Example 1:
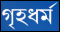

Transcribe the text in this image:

গৃহধর্ম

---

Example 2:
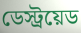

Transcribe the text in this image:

ডেস্ট্রয়েড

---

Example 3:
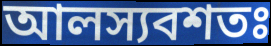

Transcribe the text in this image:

আলস্যবশতঃ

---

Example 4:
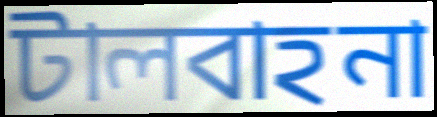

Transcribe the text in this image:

টালবাহনা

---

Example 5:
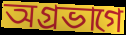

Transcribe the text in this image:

অগ্রভাগে